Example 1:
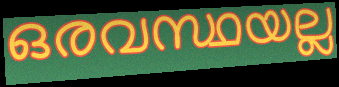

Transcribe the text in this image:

ഒരവസ്ഥയല്ല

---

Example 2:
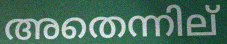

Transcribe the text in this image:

അതെന്നില്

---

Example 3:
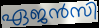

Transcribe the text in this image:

ഏജൻസി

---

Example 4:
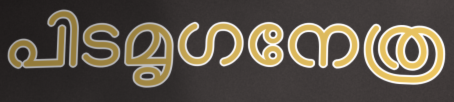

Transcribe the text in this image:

പിടമൃഗനേത്ര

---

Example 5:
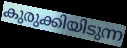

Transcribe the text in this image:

കുരുക്കിയിടുന്ന